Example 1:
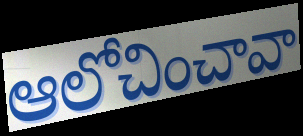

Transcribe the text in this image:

ఆలోచించావా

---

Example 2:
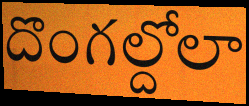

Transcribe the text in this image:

దొంగల్దోలా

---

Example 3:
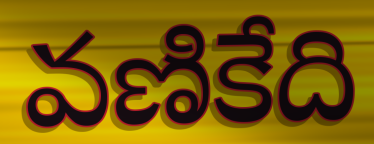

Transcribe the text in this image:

వణికేది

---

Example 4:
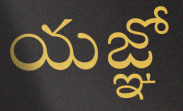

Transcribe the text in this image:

యజ్ఞో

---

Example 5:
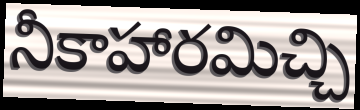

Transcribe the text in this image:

నీకాహారమిచ్చి